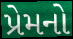
પ્રેમનો